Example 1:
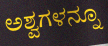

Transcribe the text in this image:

ಅಶ್ವಗಳನ್ನೂ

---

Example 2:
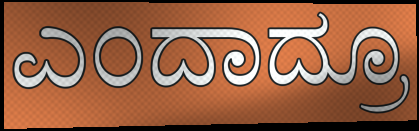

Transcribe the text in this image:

ಎಂದಾದ್ರೂ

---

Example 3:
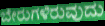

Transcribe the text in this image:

ಬೇರುಗಳಿರುವುದು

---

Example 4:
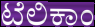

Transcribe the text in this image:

ಟೆಲಿಕಾಂ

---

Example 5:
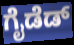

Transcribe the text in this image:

ಗೈಡೆಡ್